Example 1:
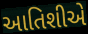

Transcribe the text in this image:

આતિશીએ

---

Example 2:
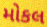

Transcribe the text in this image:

મોકલ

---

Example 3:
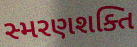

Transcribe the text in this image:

સ્મરણશક્તિ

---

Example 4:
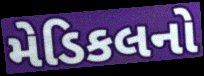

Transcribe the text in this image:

મેડિકલનો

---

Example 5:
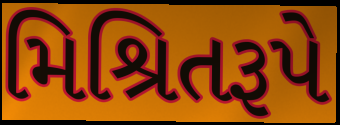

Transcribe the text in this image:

મિશ્રિતરૂપે